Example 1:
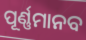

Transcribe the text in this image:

ପୂର୍ଣ୍ଣମାନବ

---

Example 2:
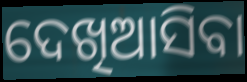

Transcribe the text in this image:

ଦେଖିଆସିବା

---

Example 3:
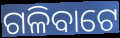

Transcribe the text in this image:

ଗଳିବାଟେ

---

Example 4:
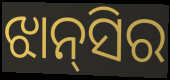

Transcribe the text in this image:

ଝାନ୍‌ସିର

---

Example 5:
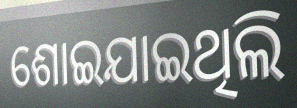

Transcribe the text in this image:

ଶୋଇଯାଇଥିଲି